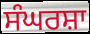
ਸੰਘਰਸ਼ਾ